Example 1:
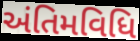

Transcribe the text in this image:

અંતિમવિધિ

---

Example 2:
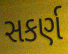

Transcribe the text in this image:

સકર્ણ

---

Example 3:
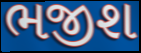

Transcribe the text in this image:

ભજીશ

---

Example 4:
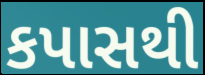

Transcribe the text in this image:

કપાસથી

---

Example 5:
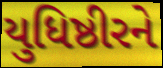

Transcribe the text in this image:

યુધિષ્ઠીરને